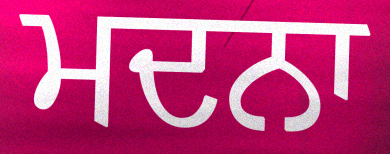
ਮਦਨਾ